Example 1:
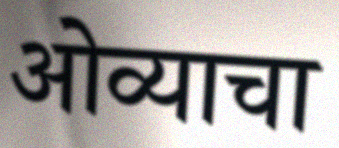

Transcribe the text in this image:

ओव्याचा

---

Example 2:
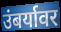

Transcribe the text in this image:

उंबर्यावर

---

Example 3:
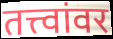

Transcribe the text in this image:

तत्त्वांवर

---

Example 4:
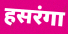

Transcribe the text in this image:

हसरंगा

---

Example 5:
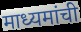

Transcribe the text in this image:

माध्यमांची